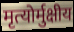
मृत्‍योर्मुक्षीय